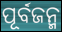
ପୂର୍ବଜନ୍ମ